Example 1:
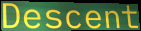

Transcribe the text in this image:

Descent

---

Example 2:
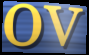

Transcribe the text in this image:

ov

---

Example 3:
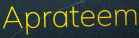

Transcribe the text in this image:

Aprateem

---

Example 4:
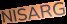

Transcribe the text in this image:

NISARG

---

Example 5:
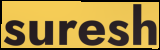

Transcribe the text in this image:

suresh